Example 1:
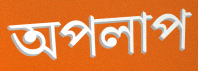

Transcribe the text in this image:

অপলাপ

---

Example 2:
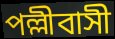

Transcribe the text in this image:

পল্লীবাসী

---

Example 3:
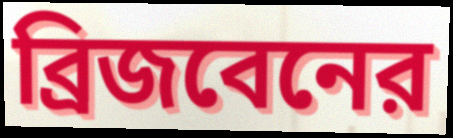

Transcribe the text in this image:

ব্রিজবেনের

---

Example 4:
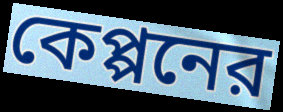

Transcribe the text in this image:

কেপ্পনের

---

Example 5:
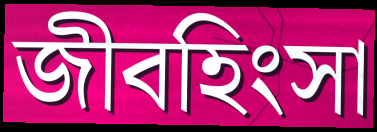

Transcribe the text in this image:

জীবহিংসা